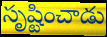
సృష్టించాడు